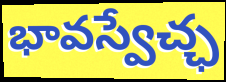
భావస్వేచ్ఛ